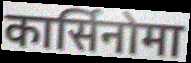
कार्सिनोमा